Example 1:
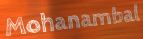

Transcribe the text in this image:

Mohanambal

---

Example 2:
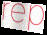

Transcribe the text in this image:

rep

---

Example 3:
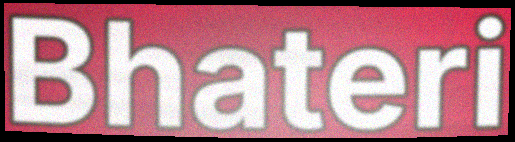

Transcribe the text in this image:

Bhateri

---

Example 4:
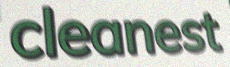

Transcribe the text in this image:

cleanest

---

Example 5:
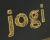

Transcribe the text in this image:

jogi